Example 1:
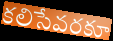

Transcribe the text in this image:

కలిసేవరకూ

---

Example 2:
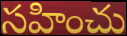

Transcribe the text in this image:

సహించు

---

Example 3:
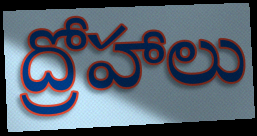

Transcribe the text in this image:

ద్రోహాలు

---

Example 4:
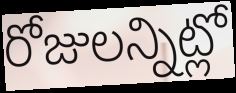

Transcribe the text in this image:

రోజులన్నిట్లో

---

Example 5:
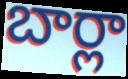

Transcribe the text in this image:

బార్లా